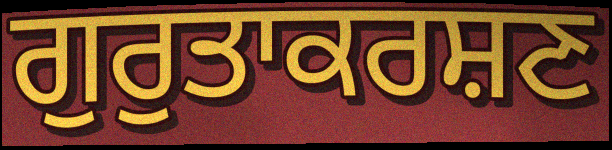
ਗੁਰੁਤਾਕਰਸ਼ਣ